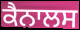
ਕੈਨਾਲਸ